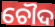
ଚୌଦ